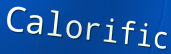
Calorific